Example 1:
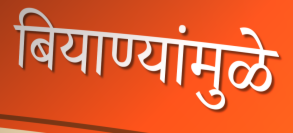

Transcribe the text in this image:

बियाण्यांमुळे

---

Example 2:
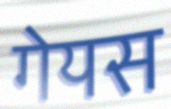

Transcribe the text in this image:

गेयस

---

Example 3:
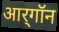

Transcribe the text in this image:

आर्‌गॉन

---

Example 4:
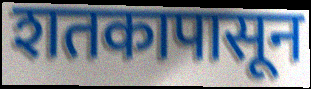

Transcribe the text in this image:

शतकापासून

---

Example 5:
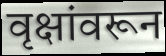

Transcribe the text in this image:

वृक्षांवरून